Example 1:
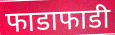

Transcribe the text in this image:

फाडाफाडी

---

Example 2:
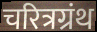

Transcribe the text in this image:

चरित्रग्रंथ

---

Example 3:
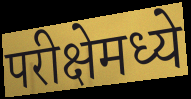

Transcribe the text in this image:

परीक्षेमध्ये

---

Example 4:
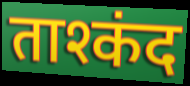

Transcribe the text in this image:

ताश्कंद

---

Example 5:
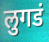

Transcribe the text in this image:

लुगडं